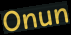
Onun